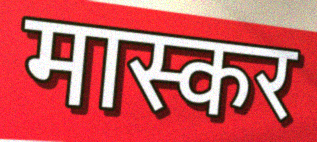
मास्कर